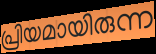
പ്രിയമായിരുന്ന